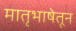
मातृभाषेतून